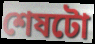
শেষটো